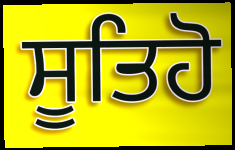
ਸੂਤਿਹੋ